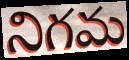
నిగమ